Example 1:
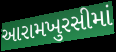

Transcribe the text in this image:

આરામખુરસીમાં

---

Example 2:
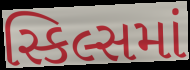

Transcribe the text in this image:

સ્કિલ્સમાં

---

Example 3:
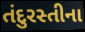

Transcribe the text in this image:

તંદુરસ્તીના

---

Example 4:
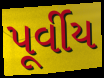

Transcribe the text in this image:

પૂર્વીય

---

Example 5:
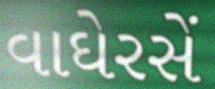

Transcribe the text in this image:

વાઘેરસેં